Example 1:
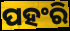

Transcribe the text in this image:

ପହଂରି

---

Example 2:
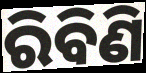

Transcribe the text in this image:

ରିବିଣି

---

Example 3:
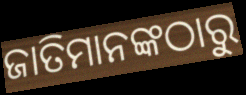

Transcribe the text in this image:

ଜାତିମାନଙ୍କଠାରୁ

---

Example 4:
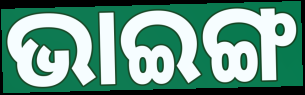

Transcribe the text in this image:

ଭାଇଙ୍ଗ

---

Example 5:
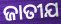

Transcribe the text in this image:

ଜାତୀଯ